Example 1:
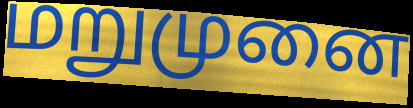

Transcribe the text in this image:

மறுமுனை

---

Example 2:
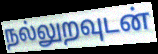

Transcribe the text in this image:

நல்லுறவுடன்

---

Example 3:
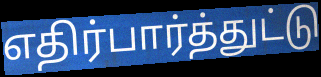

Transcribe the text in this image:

எதிர்பார்த்துட்டு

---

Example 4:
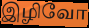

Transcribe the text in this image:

இழிவோ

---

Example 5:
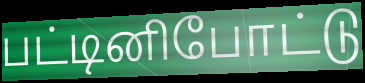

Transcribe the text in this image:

பட்டினிபோட்டு